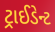
ટ્રાઈડેન્ટ